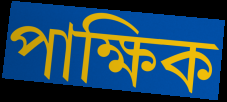
পাক্ষিক